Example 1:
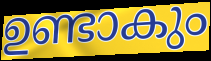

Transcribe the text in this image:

ഉണ്ടാകും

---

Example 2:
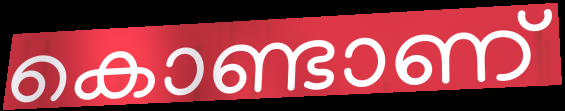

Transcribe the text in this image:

കൊണ്ടാണ്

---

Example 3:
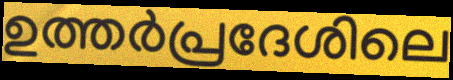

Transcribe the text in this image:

ഉത്തർപ്രദേശിലെ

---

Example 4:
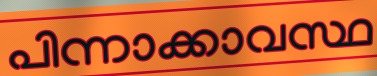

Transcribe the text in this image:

പിന്നാക്കാവസ്ഥ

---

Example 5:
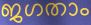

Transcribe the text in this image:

ജഗതാം